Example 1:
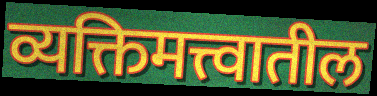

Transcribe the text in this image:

व्यक्तिमत्त्वातील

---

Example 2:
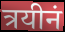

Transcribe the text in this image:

त्रयीनं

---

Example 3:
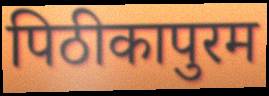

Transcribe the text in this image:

पिठीकापुरम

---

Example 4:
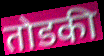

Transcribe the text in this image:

तोडकी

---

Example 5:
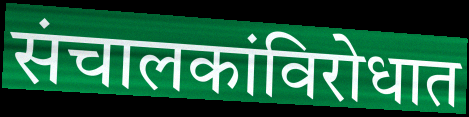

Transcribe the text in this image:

संचालकांविरोधात